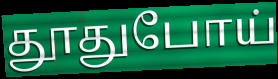
தூதுபோய்